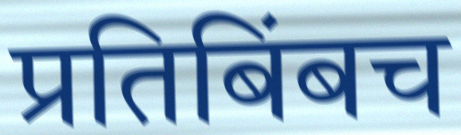
प्रतिबिंबच